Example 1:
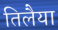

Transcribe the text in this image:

तिलैया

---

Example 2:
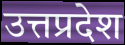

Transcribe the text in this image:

उत्तप्रदेश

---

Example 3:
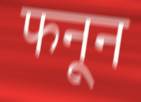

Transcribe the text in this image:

फनून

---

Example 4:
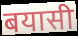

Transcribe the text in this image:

बयासी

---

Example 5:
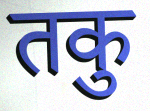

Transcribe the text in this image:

तकु